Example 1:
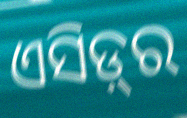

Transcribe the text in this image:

ଏସିଡ଼୍‌ର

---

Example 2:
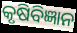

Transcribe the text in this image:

କୃଷିବିଜ୍ଞାନ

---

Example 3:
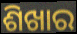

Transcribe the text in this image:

ଶିଖାର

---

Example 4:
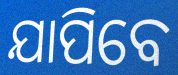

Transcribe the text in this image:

ଯାପିବେ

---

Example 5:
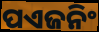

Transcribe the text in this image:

ପଏଜନିଂ